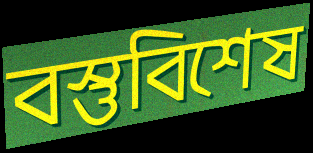
বস্তুবিশেষ